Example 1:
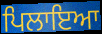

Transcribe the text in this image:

ਪਿਲਾਇਆ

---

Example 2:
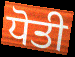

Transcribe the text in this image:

ਧੋਤੀ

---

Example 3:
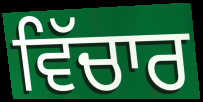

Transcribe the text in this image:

ਵਿੱਚਾਰ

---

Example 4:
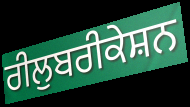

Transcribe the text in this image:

ਰੀਲੁਬਰੀਕੇਸ਼ਨ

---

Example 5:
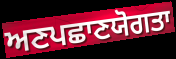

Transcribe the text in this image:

ਅਣਪਛਾਣਯੋਗਤਾ